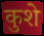
कुशे